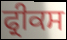
ਫ੍ਰੀਕਸ